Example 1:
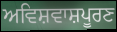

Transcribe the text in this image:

ਅਵਿਸ਼ਵਾਸ਼ਪੂਰਣ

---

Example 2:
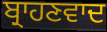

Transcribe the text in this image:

ਬ੍ਰਾਹਣਵਾਦ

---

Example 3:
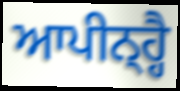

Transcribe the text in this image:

ਆਪੀਨ੍ਹ੍ਹੈ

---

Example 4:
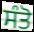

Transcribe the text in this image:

ਸੰਤੋ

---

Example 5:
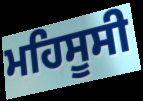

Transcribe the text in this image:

ਮਹਿਸੂਸੀ